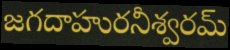
జగదాహురనీశ్వరమ్